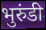
भुरुंडी